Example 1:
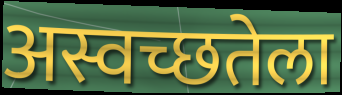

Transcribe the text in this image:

अस्वच्छतेला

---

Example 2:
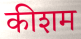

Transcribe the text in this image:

कीशम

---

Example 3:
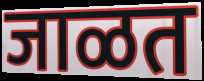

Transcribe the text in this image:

जाळत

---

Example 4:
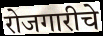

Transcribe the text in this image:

रोजगारीचे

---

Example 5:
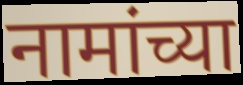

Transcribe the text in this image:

नामांच्या